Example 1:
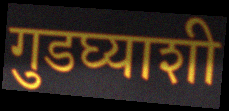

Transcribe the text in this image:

गुडघ्याशी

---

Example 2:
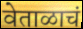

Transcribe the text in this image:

वेताळाचं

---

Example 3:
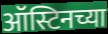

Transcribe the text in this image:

ऑस्टिनच्या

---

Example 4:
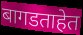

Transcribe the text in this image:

बागडताहेत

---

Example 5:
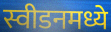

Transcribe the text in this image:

स्वीडनमध्ये